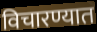
विचारण्यात